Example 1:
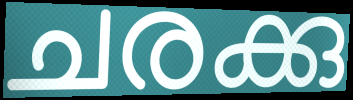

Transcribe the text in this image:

ചരക്കു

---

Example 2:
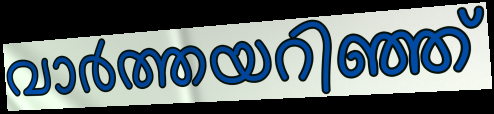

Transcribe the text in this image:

വാർത്തയറിഞ്ഞ്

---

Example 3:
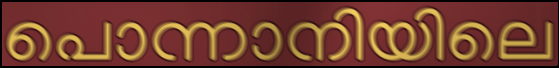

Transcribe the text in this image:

പൊന്നാനിയിലെ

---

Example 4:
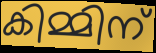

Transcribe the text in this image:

കിമ്മിന്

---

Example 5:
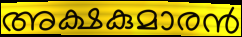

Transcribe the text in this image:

അക്ഷകുമാരൻ